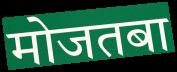
मोजतबा